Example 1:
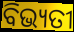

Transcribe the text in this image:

ବିଭ୍ୟତୀ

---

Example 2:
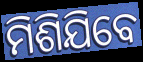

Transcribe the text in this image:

ମିଶିଯିବେ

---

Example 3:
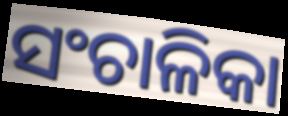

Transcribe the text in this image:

ସଂଚାଳିକା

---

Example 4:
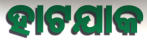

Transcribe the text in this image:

ହାଟଯାକ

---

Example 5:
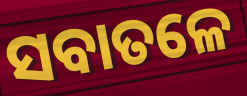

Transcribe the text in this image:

ସବାତଳେ